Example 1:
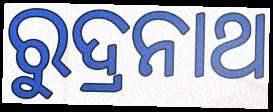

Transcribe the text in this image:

ରୁଦ୍ରନାଥ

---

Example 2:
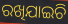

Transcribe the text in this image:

ରଖିଯାଇଚି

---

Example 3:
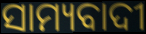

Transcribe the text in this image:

ସାମ୍ୟବାଦୀ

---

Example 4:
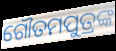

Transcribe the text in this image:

ଗୌତମପୁତ୍ରଙ୍କ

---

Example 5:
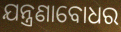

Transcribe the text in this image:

ଯନ୍ତ୍ରଣାବୋଧର